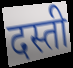
दस्ती